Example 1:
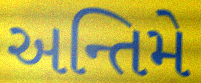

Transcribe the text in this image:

અન્તિમે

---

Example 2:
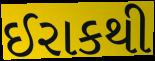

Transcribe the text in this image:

ઈરાકથી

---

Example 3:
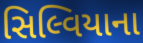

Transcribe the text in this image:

સિલ્વિયાના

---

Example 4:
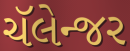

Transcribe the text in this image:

ચૅલેન્જર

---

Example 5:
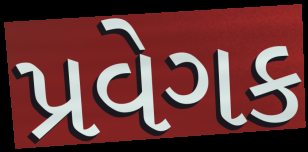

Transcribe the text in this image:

પ્રવેગક